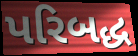
પરિબદ્ધ